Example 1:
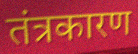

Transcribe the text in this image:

तंत्रकारण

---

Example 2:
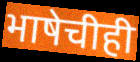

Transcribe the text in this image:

भाषेचीही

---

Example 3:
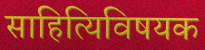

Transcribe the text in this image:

साहित्यिविषयक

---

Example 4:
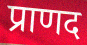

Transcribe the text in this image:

प्राणद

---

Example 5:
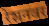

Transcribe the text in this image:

रेशनवर